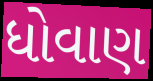
ધોવાણ